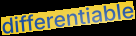
differentiable